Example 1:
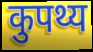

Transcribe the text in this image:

कुपथ्य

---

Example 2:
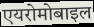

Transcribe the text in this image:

एयरोमोबाइल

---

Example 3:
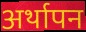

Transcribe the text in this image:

अर्थापन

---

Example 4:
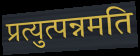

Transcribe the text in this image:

प्रत्युत्पन्नमति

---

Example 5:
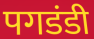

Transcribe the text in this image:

पगडंडी